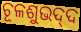
ଚୂଳଶୁଭଦ୍‍ଦ